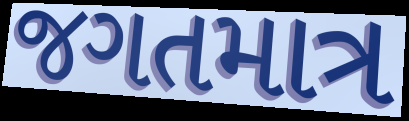
જગતમાત્ર